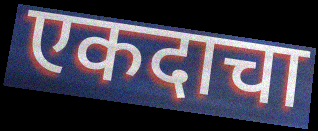
एकदाचा